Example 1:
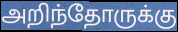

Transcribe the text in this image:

அறிந்தோருக்கு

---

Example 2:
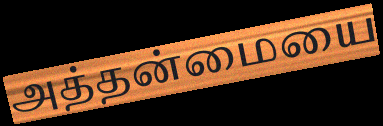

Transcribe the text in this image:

அத்தன்மையை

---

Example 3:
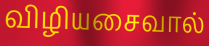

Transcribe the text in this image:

விழியசைவால்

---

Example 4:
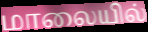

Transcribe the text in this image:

மாலையில்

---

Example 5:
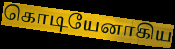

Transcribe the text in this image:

கொடியேனாகிய